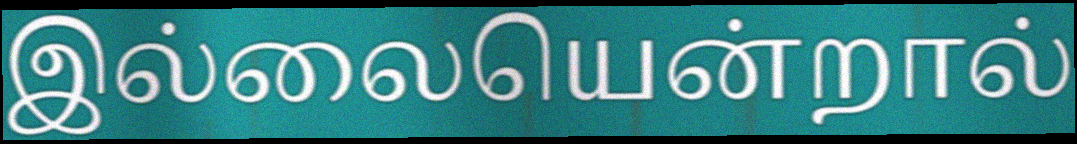
இல்லையென்றால்